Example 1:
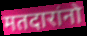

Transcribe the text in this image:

मतदारांनो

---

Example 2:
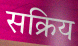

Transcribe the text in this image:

सक्रिय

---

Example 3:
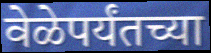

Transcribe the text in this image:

वेळेपर्यंतच्या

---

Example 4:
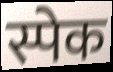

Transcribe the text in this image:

स्पेक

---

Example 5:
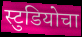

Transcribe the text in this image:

स्टुडियोचा